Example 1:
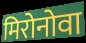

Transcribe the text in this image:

मिरोनोवा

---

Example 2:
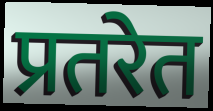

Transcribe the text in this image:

प्रतरेत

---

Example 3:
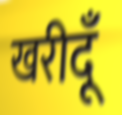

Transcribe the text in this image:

खरीदूँ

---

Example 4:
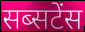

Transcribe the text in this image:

सब्सटेंस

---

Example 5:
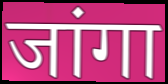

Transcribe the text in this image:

जांगा